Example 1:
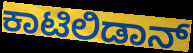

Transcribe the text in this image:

ಕಾಟಿಲಿಡಾನ್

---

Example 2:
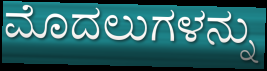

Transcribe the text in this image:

ಮೊದಲುಗಳನ್ನು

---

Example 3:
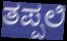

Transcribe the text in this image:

ತಪ್ಪಲಿ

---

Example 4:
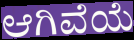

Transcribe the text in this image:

ಆಗಿವೆಯೆ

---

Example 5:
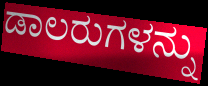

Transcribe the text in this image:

ಡಾಲರುಗಳನ್ನು